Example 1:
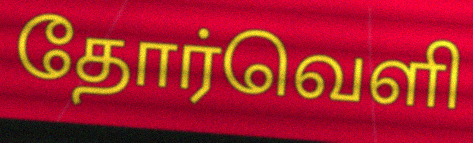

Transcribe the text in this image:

தோர்வெளி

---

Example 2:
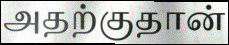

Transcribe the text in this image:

அதற்குதான்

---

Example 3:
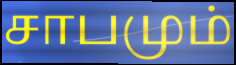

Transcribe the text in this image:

சாபமும்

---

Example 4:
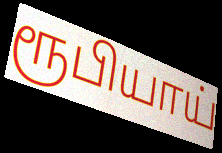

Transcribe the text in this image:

ரூபியாய்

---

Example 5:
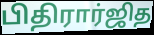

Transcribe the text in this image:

பிதிரார்ஜித